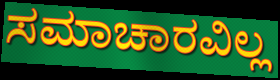
ಸಮಾಚಾರವಿಲ್ಲ